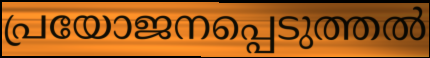
പ്രയോജനപ്പെടുത്തൽ